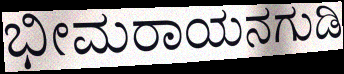
ಭೀಮರಾಯನಗುಡಿ